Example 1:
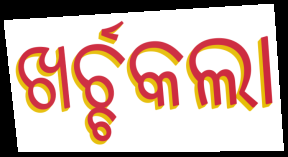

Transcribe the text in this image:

ଖର୍ଚ୍ଚକଲା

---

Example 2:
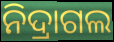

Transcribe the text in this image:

ନିଦ୍ରାଗଲ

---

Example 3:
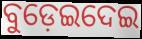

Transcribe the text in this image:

ବୁଡ଼େଇଦେଇ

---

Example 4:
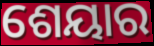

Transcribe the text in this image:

ଶେୟାର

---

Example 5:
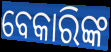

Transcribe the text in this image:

ବେକାରିଙ୍କ